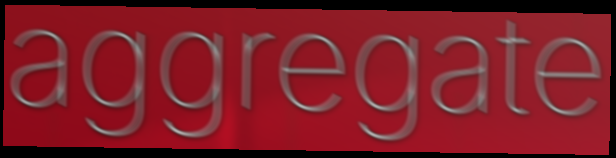
aggregate